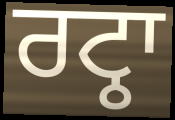
ਰਟ੍ਠਾ